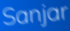
Sanjar